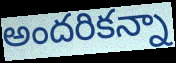
అందరికన్నా